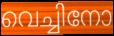
വെച്ചിനോ